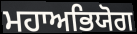
ਮਹਾਅਭਿਯੋਗ